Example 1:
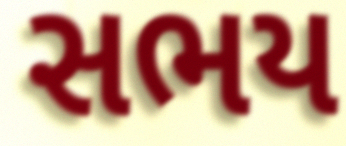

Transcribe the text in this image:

સભય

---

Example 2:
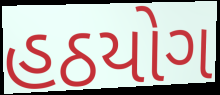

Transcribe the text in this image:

હઠયોગ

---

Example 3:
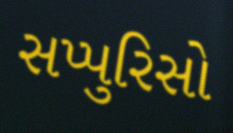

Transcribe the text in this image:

સપ્પુરિસો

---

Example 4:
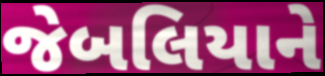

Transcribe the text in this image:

જેબલિયાને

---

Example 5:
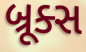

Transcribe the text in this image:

બ્રૂક્સ